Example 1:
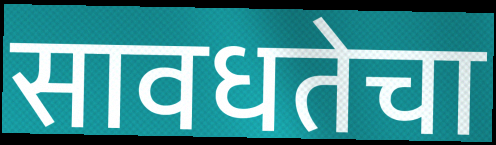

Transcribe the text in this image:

सावधतेचा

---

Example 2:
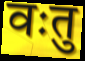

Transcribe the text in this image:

वःतु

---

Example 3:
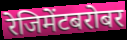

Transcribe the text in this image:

रेजिमेंटबरोबर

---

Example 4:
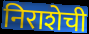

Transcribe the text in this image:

निराशेची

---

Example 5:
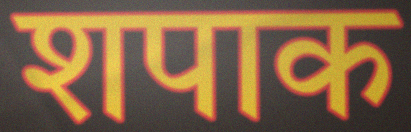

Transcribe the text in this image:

शपाक